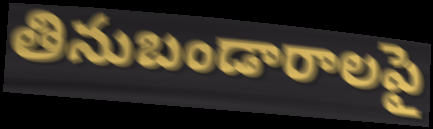
తినుబండారాలపై